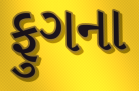
ફુગના